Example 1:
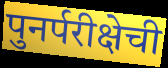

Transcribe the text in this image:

पुनर्परीक्षेची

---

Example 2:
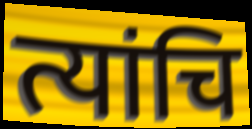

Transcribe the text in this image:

त्यांचि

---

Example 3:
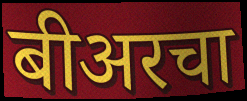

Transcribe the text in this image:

बीअरचा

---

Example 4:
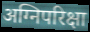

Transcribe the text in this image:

अग्निपरिक्षा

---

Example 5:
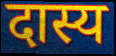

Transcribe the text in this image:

दास्य